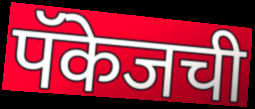
पॅकेजची